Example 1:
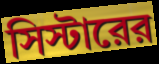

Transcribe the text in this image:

সিস্টারের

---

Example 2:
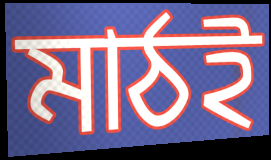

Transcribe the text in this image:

মাঠই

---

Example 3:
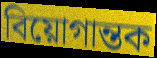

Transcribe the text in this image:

বিয়োগান্তক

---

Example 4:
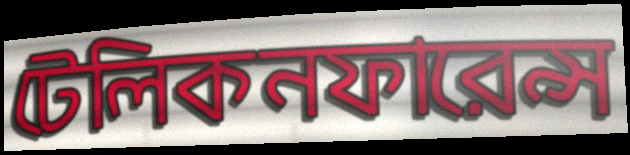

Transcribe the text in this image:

টেলিকনফারেন্স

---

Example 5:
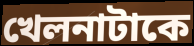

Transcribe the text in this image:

খেলনাটাকে